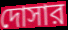
দোসার